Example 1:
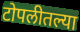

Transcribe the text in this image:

टोपलीतल्या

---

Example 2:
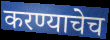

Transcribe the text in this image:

करण्याचेच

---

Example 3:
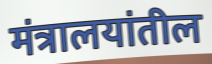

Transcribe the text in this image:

मंत्रालयांतील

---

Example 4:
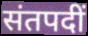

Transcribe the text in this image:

संतपदीं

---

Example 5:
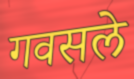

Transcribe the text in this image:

गवसले